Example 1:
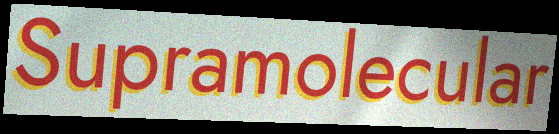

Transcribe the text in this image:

Supramolecular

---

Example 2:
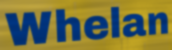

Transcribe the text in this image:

Whelan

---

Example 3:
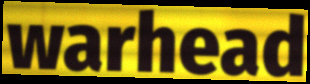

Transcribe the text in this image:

warhead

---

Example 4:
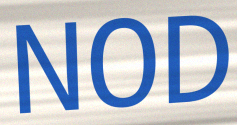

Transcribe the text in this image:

NOD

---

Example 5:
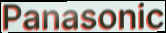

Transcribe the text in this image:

Panasonic